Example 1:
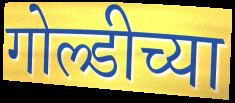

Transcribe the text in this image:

गोल्डीच्या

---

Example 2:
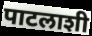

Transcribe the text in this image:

पाटलाशी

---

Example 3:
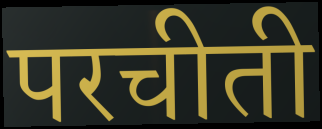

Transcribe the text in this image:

परचीती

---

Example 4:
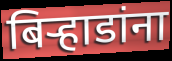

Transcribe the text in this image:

बिऱ्हाडांना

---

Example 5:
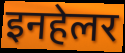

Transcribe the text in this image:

इनहेलर